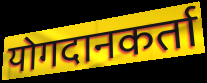
योगदानकर्ता